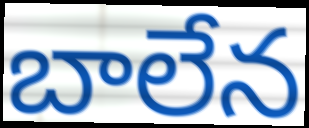
బాలేన